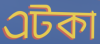
এটকা